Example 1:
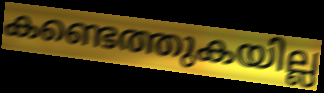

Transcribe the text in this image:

കണ്ടെത്തുകയില്ല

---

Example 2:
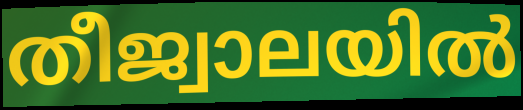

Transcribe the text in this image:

തീജ്വാലയിൽ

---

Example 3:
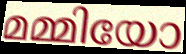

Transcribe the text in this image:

മമ്മിയോ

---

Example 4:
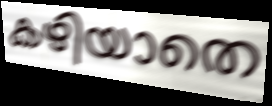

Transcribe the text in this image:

കഴിയാതെ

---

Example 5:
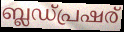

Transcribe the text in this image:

ബ്ലഡ്പ്രഷര്